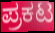
ಪ್ರಕಟ